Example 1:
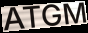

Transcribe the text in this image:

ATGM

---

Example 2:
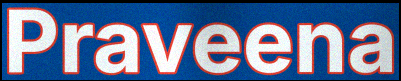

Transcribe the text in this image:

Praveena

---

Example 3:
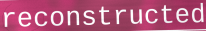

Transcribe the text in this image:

reconstructed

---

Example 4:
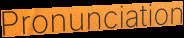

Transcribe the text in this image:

Pronunciation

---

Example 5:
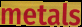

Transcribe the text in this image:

metals